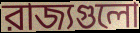
রাজ্যগুলো